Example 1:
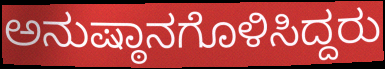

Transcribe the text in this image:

ಅನುಷ್ಠಾನಗೊಳಿಸಿದ್ದರು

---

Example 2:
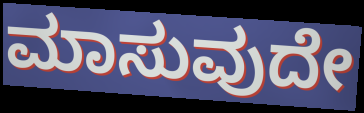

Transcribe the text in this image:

ಮಾಸುವುದೇ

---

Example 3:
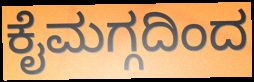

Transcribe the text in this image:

ಕೈಮಗ್ಗದಿಂದ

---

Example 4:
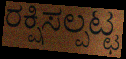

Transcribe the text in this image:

ರಕ್ಷಿಸಲ್ಪಟ್ಟ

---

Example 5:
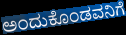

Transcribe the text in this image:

ಅಂದುಕೊಂಡವನಿಗೆ